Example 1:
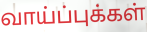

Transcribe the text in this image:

வாய்ப்புக்கள்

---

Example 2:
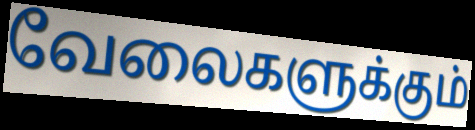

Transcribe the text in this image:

வேலைகளுக்கும்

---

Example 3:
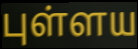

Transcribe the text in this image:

புள்ளய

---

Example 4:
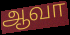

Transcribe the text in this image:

ஆவா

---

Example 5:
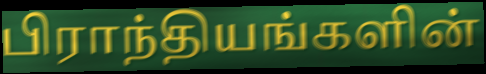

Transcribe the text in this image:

பிராந்தியங்களின்